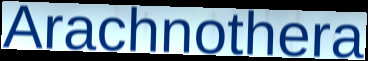
Arachnothera